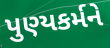
પુણ્યકર્મને